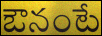
ఔనంటే